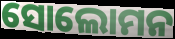
ସୋଲୋମନ